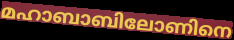
മഹാബാബിലോണിനെ